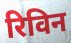
रिविन